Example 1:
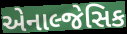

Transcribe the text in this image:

એનાલ્જેસિક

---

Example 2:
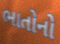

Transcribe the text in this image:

ભાતોનો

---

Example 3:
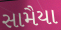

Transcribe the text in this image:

સામૈયા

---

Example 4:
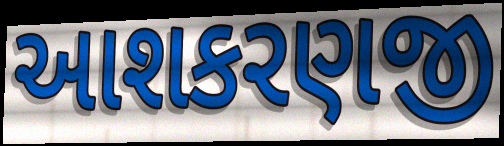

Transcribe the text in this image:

આશકરણજી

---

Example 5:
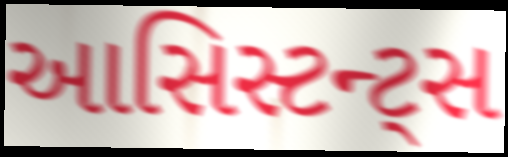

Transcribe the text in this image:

આસિસ્ટન્ટ્સ